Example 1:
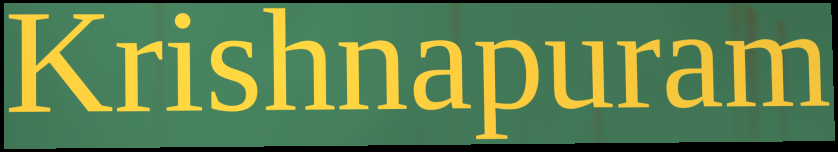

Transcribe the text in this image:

Krishnapuram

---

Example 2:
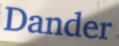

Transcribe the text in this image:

Dander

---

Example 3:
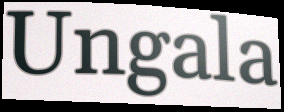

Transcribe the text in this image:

Ungala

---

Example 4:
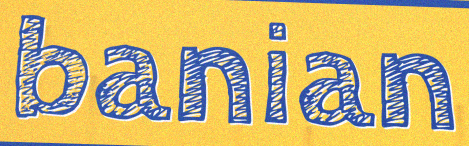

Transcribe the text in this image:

banian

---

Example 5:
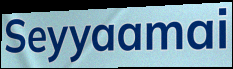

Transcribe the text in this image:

Seyyaamai